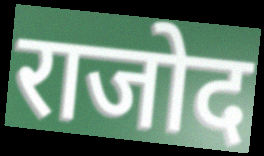
राजोद